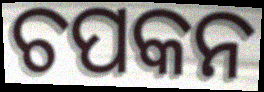
ଚପକନ